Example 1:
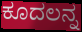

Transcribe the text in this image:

ಕೂದಲನ್ನ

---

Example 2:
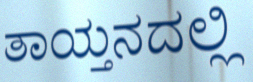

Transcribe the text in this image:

ತಾಯ್ತನದಲ್ಲಿ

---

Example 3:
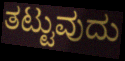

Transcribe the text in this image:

ತಟ್ಟುವುದು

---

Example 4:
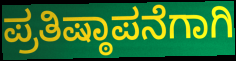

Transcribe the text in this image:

ಪ್ರತಿಷ್ಠಾಪನೆಗಾಗಿ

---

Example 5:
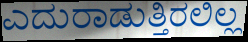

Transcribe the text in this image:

ಎದುರಾಡುತ್ತಿರಲಿಲ್ಲ